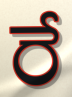
రే